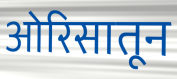
ओरिसातून